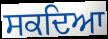
ਸਕਦਿਆ